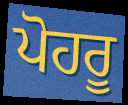
ਪੋਹਰੂ